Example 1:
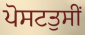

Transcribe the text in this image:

ਪੋਸਟਤੁਸੀਂ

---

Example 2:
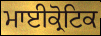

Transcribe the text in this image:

ਮਾਈਕ੍ਰੋਟਿਕ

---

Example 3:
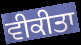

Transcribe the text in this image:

ਵੀਕੀਤਾ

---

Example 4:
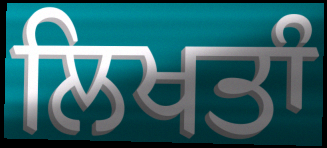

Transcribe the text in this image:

ਲਿਖਤਾੰ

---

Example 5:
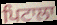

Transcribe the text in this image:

ਪਿਟਾਲਾ